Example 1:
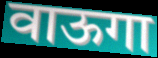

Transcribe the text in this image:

वाऊगा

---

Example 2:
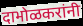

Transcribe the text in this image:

दाभोळकरांनी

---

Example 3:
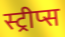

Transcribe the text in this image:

स्ट्रीप्स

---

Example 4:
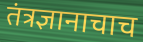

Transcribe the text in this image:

तंत्रज्ञानाचाच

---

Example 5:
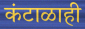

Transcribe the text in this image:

कंटाळाही